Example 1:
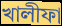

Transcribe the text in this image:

খালীফা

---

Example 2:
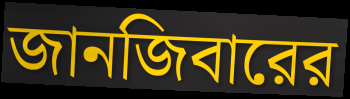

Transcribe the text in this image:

জানজিবারের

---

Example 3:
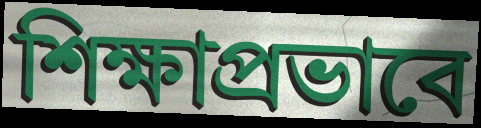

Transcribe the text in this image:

শিক্ষাপ্রভাবে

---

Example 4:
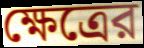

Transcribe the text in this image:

ক্ষেত্রের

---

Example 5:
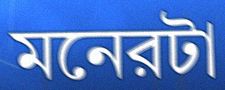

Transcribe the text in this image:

মনেরটা